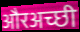
औरअच्छी